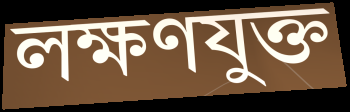
লক্ষণযুক্ত